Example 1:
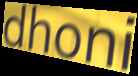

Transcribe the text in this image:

dhoni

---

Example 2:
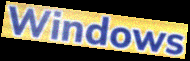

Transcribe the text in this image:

Windows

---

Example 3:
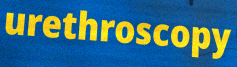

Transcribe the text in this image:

urethroscopy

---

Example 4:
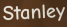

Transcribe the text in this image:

Stanley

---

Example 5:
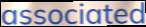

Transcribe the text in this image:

associated